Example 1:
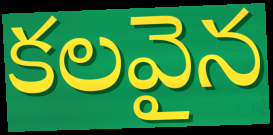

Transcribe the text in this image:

కలవైన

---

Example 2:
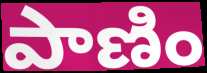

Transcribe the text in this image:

పాణిం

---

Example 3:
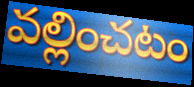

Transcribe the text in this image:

వల్లించటం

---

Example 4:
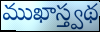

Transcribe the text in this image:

ముఖాస్త్వథ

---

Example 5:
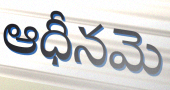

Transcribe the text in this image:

ఆధీనమె